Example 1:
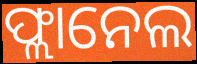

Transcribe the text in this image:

ଫ୍ଲାନେଲ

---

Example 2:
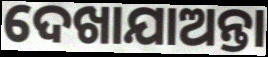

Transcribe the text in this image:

ଦେଖାଯାଅନ୍ତା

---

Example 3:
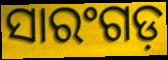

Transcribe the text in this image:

ସାରଂଗଡ଼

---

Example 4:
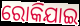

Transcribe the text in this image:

ରୋକିଯାଇ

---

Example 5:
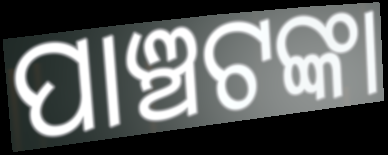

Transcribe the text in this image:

ପାଞ୍ଚଟଙ୍କା